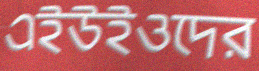
এইউইওদের